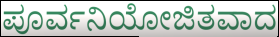
ಪೂರ್ವನಿಯೋಜಿತವಾದ